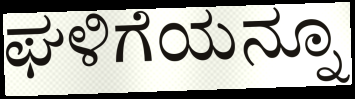
ಘಳಿಗೆಯನ್ನೂ